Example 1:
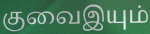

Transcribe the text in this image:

குவைஇயும்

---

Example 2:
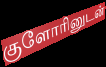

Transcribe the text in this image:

குளோரினுடன்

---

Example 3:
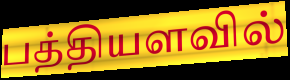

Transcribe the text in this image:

பத்தியளவில்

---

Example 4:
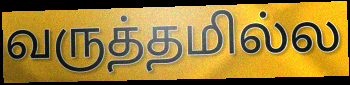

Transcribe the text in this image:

வருத்தமில்ல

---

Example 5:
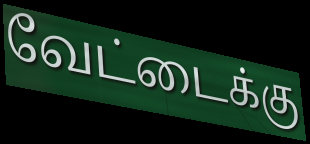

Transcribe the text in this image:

வேட்டைக்கு